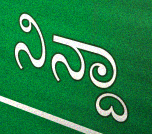
ನಿನ್ದಾ